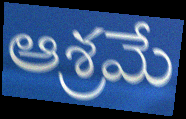
ఆశ్రమే